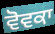
ਵੋਵਕਾ